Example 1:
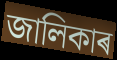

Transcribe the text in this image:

জালিকাৰ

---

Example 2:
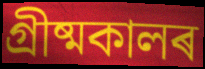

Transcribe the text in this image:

গ্ৰীষ্মকালৰ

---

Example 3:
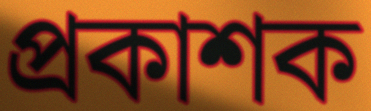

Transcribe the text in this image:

প্ৰকাশক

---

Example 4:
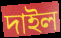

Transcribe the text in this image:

দাইল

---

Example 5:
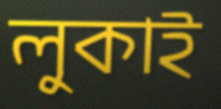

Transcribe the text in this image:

লুকাই